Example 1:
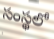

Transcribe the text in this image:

సంస్థలో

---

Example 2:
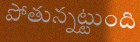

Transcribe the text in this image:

పోతున్నట్టుంది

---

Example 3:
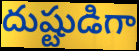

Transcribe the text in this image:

దుష్టుడిగా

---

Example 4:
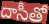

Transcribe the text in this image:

దాసీతో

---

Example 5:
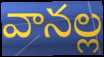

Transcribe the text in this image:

వానల్ల